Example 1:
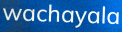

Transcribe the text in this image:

wachayala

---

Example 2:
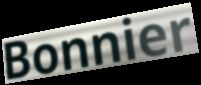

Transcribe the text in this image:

Bonnier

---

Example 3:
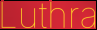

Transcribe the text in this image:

Luthra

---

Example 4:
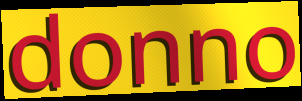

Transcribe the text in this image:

donno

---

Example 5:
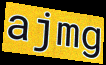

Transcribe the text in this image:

ajmg